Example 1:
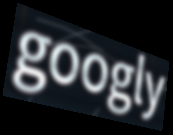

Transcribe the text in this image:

googly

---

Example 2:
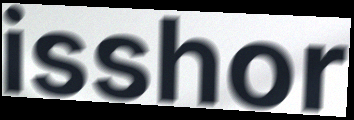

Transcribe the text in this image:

isshor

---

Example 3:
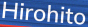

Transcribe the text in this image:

Hirohito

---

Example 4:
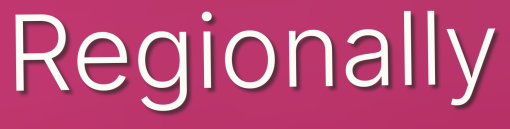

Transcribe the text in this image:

Regionally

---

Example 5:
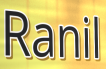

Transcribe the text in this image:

Ranil